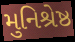
મુનિશ્રેષ્ઠ